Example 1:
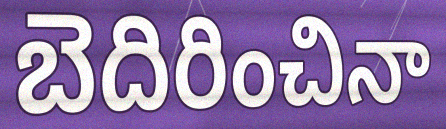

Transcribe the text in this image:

బెదిరించినా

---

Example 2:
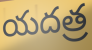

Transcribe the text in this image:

యదత్ర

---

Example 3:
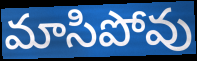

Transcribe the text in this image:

మాసిపోవు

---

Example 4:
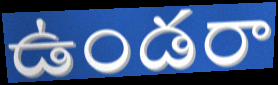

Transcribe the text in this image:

ఉండరా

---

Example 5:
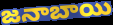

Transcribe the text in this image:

జనాబాయి